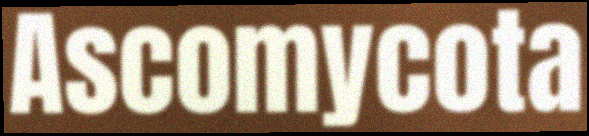
Ascomycota